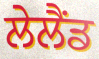
ਲੇਲੈਂਡ